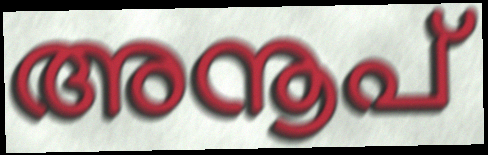
അനൂപ്